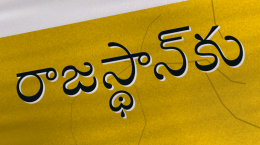
రాజస్థాన్‌కు